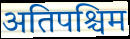
अतिपश्चिम